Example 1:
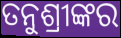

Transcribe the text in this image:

ତନୁଶ୍ରୀଙ୍କର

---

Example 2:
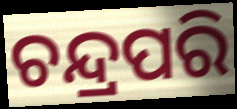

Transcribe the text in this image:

ଚନ୍ଦ୍ରପରି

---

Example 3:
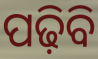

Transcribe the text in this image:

ପଢ଼ିବି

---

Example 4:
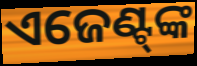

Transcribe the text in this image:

ଏଜେଣ୍ଟ୍‍ଙ୍କ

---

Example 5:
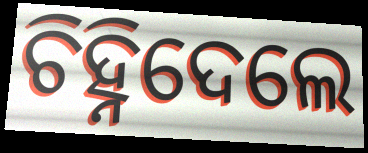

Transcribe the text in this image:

ଚିହ୍ନିଦେଲେ